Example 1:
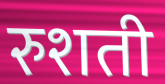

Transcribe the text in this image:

रुशती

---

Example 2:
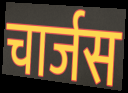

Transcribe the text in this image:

चार्जस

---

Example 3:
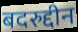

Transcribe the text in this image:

बदरुद्दीन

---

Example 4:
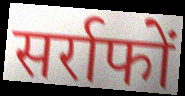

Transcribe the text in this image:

सर्राफों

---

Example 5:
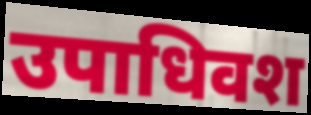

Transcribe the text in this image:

उपाधिवश